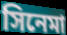
সিনেমা